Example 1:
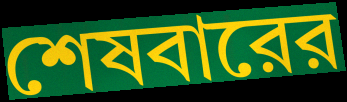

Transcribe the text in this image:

শেষবারের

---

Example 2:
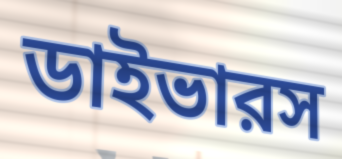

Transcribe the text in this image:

ডাইভারস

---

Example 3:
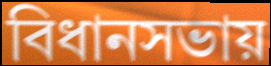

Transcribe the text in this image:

বিধানসভায়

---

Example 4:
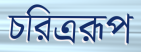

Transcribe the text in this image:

চরিত্ররূপ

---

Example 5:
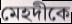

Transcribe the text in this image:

মেহদীকে